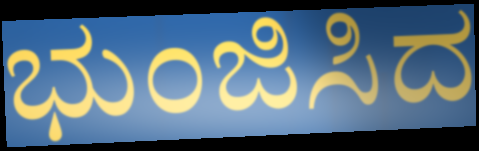
ಭುಂಜಿಸಿದ